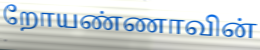
றோயண்ணாவின்